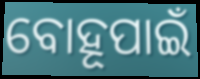
ବୋହୂପାଇଁ